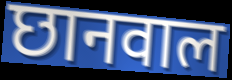
छानवाल